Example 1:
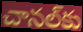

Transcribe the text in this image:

చానల్‌కు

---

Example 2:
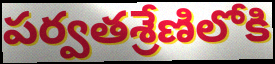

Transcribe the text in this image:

పర్వతశ్రేణిలోకి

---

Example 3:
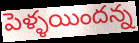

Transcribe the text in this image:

పెళ్ళయిందన్న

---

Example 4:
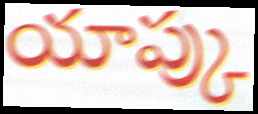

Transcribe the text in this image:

యాప్కు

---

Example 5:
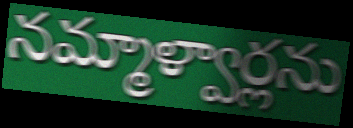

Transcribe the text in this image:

నమ్మాళ్వార్లను